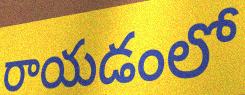
రాయడంలో